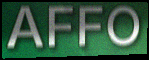
AFFO